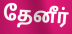
தேனீர்